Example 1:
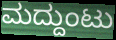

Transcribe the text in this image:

ಮದ್ದುಂಟು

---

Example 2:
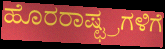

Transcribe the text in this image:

ಹೊರರಾಷ್ಟ್ರಗಳಿಗೆ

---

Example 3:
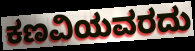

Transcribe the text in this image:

ಕಣವಿಯವರದು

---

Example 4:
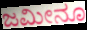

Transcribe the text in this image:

ಜಮೀನೂ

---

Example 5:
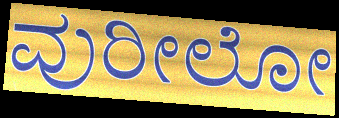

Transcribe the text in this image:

ವುರೀಲೋ